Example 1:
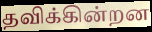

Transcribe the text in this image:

தவிக்கின்றன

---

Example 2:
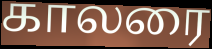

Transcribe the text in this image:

காலரை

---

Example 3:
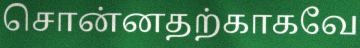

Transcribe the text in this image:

சொன்னதற்காகவே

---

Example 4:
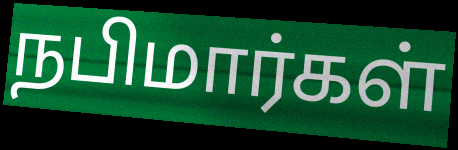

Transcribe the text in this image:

நபிமார்கள்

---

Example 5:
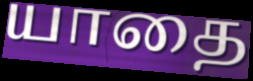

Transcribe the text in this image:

யாதை